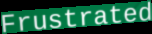
Frustrated